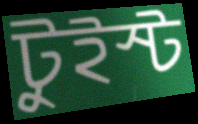
টুইস্ট